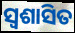
ସ୍ୱଶାସିତ